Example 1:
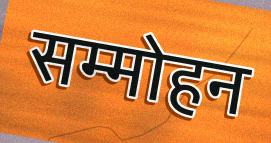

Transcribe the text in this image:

सम्मोहन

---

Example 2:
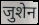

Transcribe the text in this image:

जुशेन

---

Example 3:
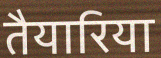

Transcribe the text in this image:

तैयारिया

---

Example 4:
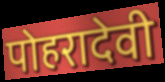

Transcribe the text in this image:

पोहरादेवी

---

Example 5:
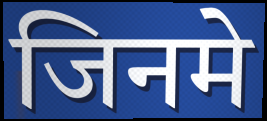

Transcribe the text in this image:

जिनमे